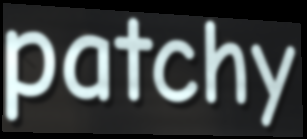
patchy